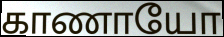
காணாயோ